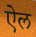
ऐल